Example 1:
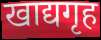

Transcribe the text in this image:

खाद्यगृह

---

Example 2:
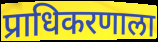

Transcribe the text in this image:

प्राधिकरणाला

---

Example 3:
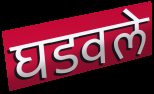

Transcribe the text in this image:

घडवले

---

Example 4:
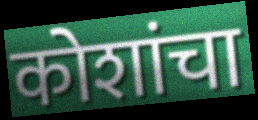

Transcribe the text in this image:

कोशांचा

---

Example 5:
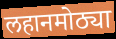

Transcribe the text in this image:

लहानमोठ्या